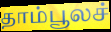
தாம்பூலச்